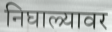
निघाल्यावर